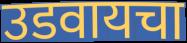
उडवायचा